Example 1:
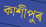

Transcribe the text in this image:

কাশীপুৰ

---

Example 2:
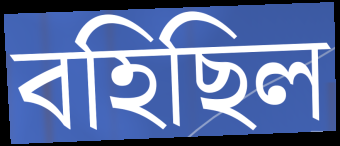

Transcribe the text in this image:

বহিছিল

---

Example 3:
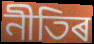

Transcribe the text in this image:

নীতিৰ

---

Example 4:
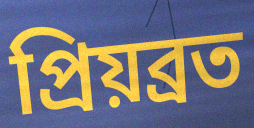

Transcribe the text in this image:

প্ৰিয়ব্ৰত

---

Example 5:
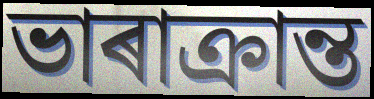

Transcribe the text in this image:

ভাৰাক্ৰান্ত